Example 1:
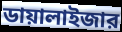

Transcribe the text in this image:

ডায়ালাইজার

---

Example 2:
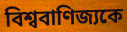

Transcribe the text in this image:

বিশ্ববাণিজ্যকে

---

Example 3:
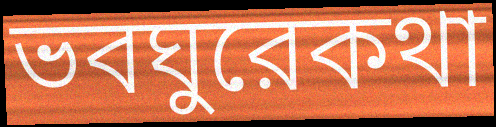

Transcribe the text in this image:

ভবঘুরেকথা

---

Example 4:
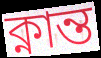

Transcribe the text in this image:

ক্নান্ত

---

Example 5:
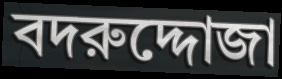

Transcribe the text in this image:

বদরুদ্দোজা